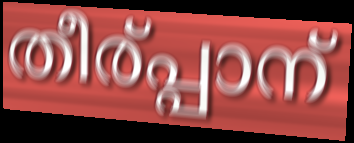
തീര്പ്പാന്